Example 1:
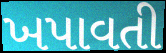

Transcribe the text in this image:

ખપાવતી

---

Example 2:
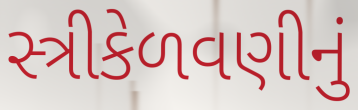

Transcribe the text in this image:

સ્ત્રીકેળવણીનું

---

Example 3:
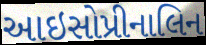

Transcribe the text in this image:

આઇસોપ્રીનાલિન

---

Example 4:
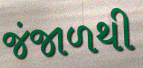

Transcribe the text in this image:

જંજાળથી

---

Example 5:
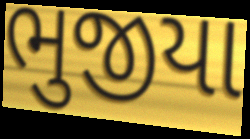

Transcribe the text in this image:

ભુજીયા